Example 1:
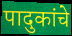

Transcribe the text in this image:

पादुकांचे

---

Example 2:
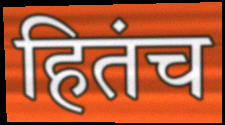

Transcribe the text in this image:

हितंच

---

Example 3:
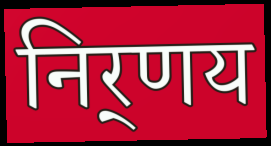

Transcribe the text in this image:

निर्णय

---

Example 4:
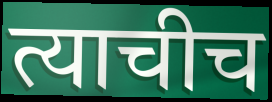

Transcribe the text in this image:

त्याचीच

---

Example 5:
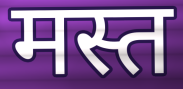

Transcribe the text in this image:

मस्त